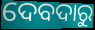
ଦେବଦାରୁ